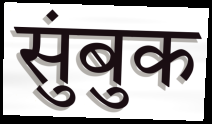
सुंबुक